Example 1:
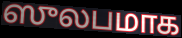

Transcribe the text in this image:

ஸுலபமாக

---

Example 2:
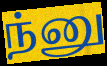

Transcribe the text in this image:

ந்னு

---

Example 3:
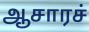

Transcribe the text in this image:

ஆசாரச்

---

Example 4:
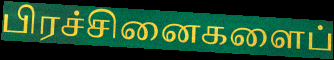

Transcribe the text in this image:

பிரச்சினைகளைப்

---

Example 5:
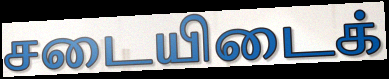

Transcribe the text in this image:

சடையிடைக்